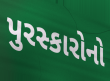
પુરસ્કારોનો